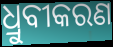
ଧ୍ରୁବୀକରଣ